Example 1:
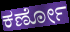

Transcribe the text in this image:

ಕರ್ಣೋ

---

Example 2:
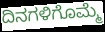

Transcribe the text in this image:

ದಿನಗಳಿಗೊಮ್ಮೆ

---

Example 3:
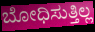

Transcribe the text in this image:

ಬೋಧಿಸುತ್ತಿಲ್ಲ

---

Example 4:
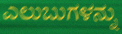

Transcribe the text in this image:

ಎಲುಬುಗಳನ್ನು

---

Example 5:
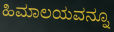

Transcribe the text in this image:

ಹಿಮಾಲಯವನ್ನೂ